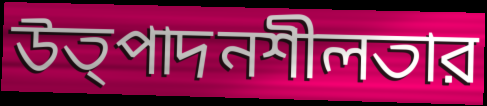
উত্পাদনশীলতার